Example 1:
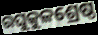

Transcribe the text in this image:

ରଘୁକୁଳଶ୍ରେଷ୍ଠ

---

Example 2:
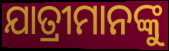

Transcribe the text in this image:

ଯାତ୍ରୀମାନଙ୍କୁ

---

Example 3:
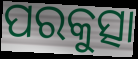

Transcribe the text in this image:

ପରକୁତ୍ସା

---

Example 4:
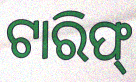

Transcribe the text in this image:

ଟାରିଫ୍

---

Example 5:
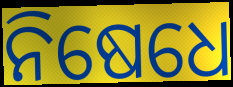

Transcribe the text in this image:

ନିଷେଧେ